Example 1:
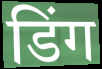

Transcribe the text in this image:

डिंग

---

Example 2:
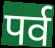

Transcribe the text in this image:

पर्व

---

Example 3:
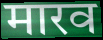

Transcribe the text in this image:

मारव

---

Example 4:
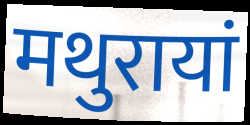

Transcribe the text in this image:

मथुरायां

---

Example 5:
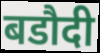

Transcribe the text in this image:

बडौदी